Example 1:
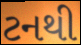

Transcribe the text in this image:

ટનથી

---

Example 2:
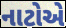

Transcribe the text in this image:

નાટોએ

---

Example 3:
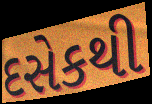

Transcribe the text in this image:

દસેકથી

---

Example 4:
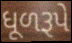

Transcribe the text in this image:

ધૂળરૂપે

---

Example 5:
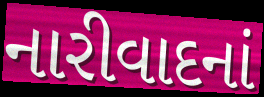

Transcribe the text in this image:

નારીવાદનાં